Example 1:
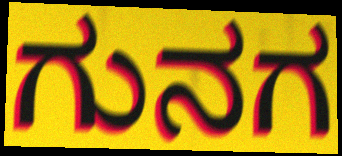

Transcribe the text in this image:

ಗುನಗ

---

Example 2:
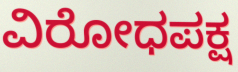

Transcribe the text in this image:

ವಿರೋಧಪಕ್ಷ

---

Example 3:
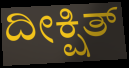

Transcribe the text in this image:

ದೀಕ್ಷಿತ್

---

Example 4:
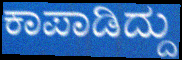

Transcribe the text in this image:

ಕಾಪಾಡಿದ್ದು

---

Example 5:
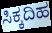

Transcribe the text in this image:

ಸಿಕ್ಕದಿಹ